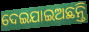
ଦେଇଯାଇଅଛନ୍ତି